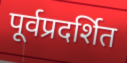
पूर्वप्रदर्शित